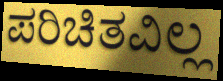
ಪರಿಚಿತವಿಲ್ಲ